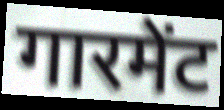
गारमेंट